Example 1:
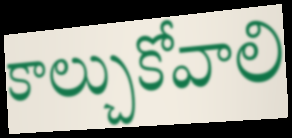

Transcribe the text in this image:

కాల్చుకోవాలి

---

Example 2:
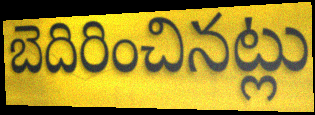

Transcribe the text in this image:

బెదిరించినట్లు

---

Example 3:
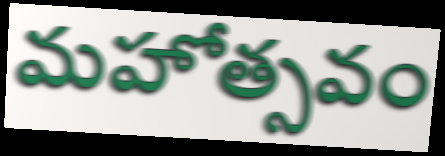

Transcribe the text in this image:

మహోత్సవం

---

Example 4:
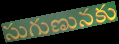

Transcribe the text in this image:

సుగుణునకు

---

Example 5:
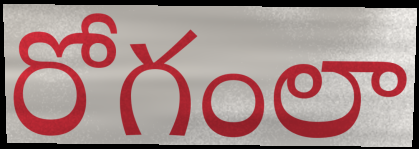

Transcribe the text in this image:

రోగంలా